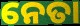
ନେତା